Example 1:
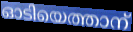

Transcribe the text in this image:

ഓടിയെത്താന്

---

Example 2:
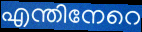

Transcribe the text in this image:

എന്തിനേറെ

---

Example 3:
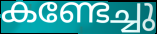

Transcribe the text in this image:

കണ്ടേച്ചു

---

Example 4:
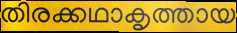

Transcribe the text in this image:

തിരക്കഥാകൃത്തായ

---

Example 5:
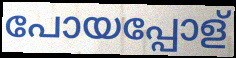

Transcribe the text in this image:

പോയപ്പോള്